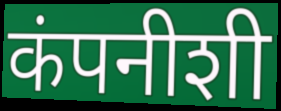
कंपनीशी